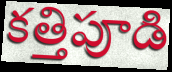
కత్తిపూడి